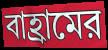
বাহ্রামের